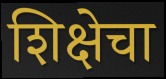
शिक्षेचा